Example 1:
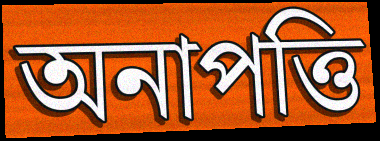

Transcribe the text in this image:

অনাপত্তি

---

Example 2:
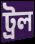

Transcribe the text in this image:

ট্রল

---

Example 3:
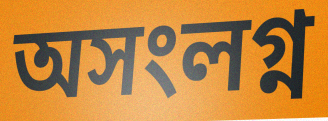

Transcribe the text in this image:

অসংলগ্ন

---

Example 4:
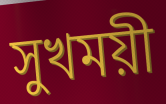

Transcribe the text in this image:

সুখময়ী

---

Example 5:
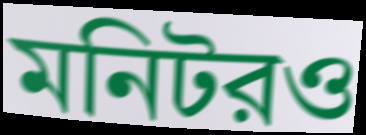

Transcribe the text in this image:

মনিটরও